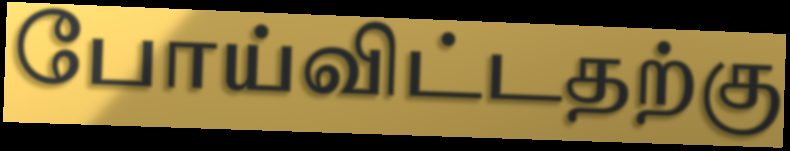
போய்விட்டதற்கு